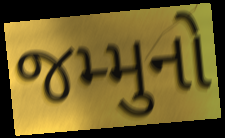
જમ્મુનો